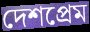
দেশপ্রেম